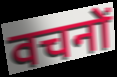
वचनों